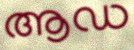
ആഡ